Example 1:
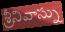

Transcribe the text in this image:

శ్రీనివాస్ను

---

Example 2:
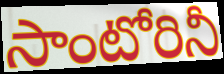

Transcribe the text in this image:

సాంటోరినీ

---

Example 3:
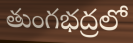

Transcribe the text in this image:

తుంగభద్రలో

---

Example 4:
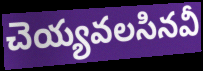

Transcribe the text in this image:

చెయ్యవలసినవీ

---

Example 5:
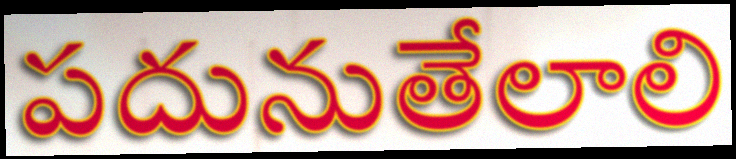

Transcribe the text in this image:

పదునుతేలాలి